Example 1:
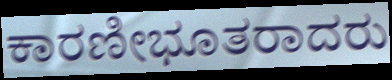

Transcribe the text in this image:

ಕಾರಣೀಭೂತರಾದರು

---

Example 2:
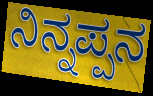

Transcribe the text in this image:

ನಿನ್ನಪ್ಪನ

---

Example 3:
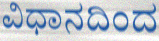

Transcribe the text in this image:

ವಿಧಾನದಿಂದ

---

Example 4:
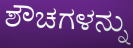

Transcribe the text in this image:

ಶೌಚಗಳನ್ನು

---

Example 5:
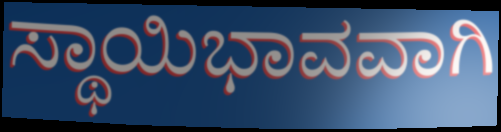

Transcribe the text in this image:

ಸ್ಥಾಯಿಭಾವವಾಗಿ